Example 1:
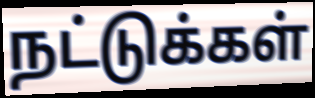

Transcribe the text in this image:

நட்டுக்கள்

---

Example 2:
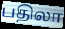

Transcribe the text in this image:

பதிலா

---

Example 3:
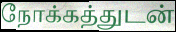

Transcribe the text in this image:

நோக்கத்துடன்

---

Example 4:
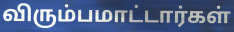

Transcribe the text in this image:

விரும்பமாட்டார்கள்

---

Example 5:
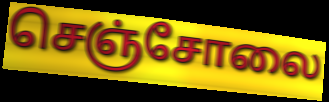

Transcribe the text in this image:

செஞ்சோலை